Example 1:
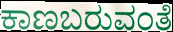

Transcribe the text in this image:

ಕಾಣಬರುವಂತೆ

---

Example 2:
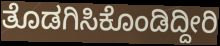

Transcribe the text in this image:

ತೊಡಗಿಸಿಕೊಂಡಿದ್ದೀರಿ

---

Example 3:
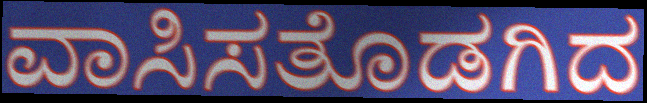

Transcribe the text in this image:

ವಾಸಿಸತೊಡಗಿದ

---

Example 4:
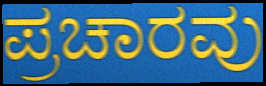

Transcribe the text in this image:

ಪ್ರಚಾರವು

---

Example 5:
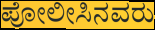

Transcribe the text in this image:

ಪೋಲೀಸಿನವರು